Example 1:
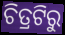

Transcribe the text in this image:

ଚିତ୍ରଟିରୁ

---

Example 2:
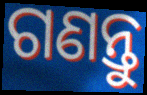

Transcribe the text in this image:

ଗଣନ୍ତୁ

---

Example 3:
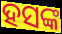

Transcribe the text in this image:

ହସଙ୍କ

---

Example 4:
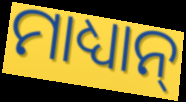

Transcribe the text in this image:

ମାଧ୍ୟାନ୍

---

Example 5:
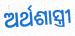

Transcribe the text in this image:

ଅର୍ଥଶାସ୍ତ୍ରୀ